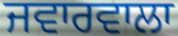
ਜਵਾਰਵਾਲਾ